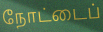
நோட்டைப்